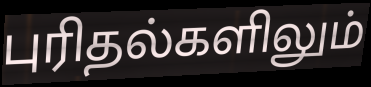
புரிதல்களிலும்